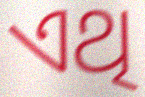
ଏଥି